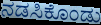
ನಡಸಿಕೊಂಡು